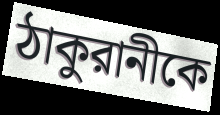
ঠাকুরানীকে